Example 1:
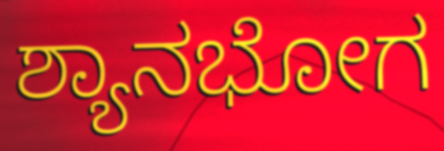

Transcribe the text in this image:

ಶ್ಯಾನಭೋಗ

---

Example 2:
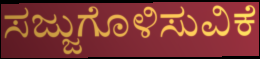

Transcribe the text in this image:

ಸಜ್ಜುಗೊಳಿಸುವಿಕೆ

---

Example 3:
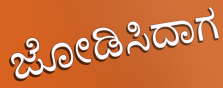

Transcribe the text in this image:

ಜೋಡಿಸಿದಾಗ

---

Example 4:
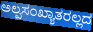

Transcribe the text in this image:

ಅಲ್ಪಸಂಖ್ಯಾತರಲ್ಲದ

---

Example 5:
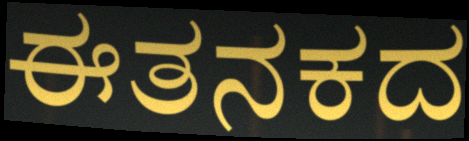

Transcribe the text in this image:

ಈತನಕದ